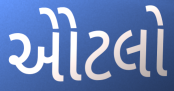
એોટલો